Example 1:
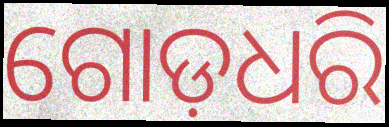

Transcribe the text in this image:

ଗୋଡ଼ଧରି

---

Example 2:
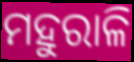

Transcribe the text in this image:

ମହୁରାଳି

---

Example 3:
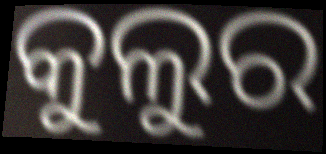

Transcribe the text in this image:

କୁଲୁର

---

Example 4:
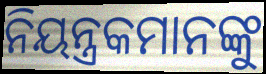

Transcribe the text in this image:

ନିୟନ୍ତ୍ରକମାନଙ୍କୁ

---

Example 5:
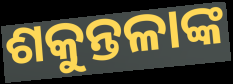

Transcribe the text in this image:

ଶକୁନ୍ତଳାଙ୍କ